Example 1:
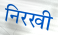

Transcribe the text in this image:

निरखी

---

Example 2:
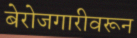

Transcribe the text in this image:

बेरोजगारीवरून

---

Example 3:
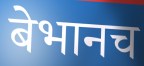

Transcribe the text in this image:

बेभानच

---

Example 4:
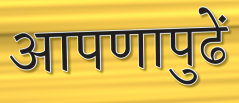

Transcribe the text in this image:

आपणापुढें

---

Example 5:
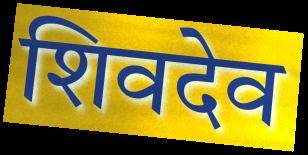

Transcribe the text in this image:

शिवदेव